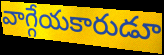
వాగ్గేయకారుడూ